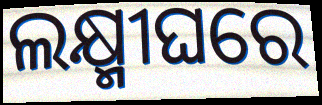
ଲକ୍ଷ୍ମୀଘରେ